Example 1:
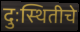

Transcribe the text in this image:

दुःस्थितीचे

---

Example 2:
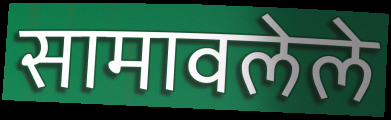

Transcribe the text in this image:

सामावलेले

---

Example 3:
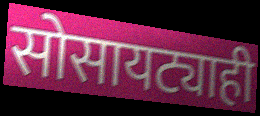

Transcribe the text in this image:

सोसायट्याही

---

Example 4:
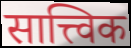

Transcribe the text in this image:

सात्त्विक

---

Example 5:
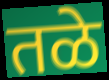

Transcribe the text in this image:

तळे